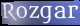
Rozgar